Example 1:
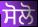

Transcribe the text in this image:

ਸੋਲੋ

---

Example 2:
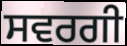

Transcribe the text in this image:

ਸਵਰਗੀ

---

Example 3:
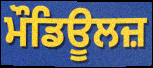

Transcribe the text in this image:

ਮੌਡਿਊਲਜ਼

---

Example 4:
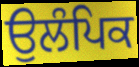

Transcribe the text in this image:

ਉਲੰਪਿਕ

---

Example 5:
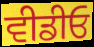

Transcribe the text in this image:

ਵੀਡੀਓ